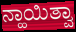
ನ್ಹಾಯಿತ್ವಾ